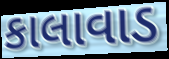
કાલાવાડ